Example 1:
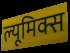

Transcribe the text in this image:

ल्यूमिक्स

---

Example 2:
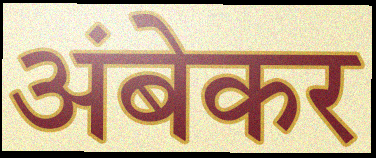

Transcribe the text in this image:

अंबेकर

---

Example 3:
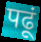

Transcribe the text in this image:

पढूं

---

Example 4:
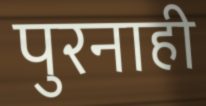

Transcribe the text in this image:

पुरनाही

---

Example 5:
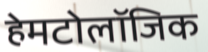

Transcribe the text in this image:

हेमटोलॉजिक